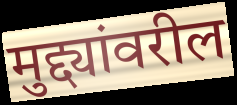
मुद्द्यांवरील